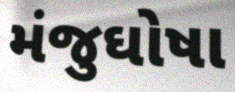
મંજુઘોષા